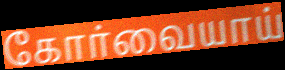
கோர்வையாய்